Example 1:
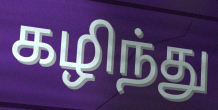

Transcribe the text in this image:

கழிந்து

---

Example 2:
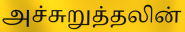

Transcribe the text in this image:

அச்சுறுத்தலின்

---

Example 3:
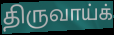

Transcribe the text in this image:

திருவாய்க்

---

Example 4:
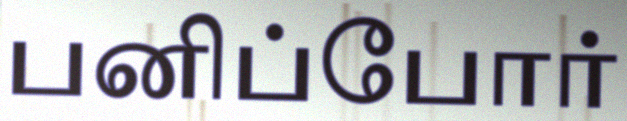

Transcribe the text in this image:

பனிப்போர்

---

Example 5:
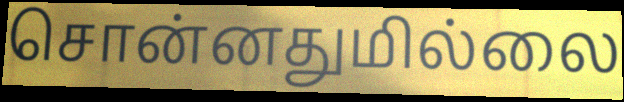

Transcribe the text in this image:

சொன்னதுமில்லை